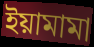
ইয়ামামা